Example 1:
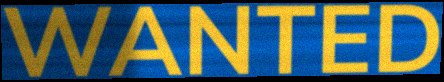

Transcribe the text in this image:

WANTED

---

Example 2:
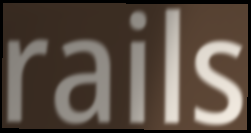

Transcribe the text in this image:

rails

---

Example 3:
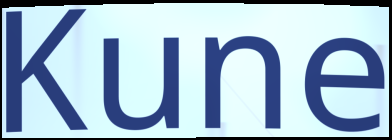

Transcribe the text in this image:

Kune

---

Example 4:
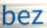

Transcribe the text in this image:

bez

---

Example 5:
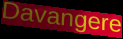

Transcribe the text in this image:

Davangere